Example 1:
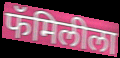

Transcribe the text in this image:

फॅमिलीला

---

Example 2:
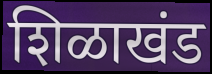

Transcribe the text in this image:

शिळाखंड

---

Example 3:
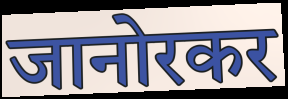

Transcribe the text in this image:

जानोरकर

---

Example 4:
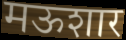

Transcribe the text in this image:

मऊशार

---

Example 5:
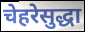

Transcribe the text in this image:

चेहरेसुद्धा